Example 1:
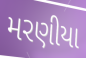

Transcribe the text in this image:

મરણીયા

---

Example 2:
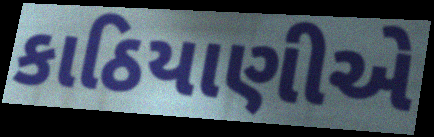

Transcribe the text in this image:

કાઠિયાણીએ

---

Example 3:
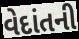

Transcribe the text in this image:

વેદાંતની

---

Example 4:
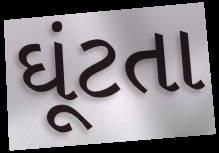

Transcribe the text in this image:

ઘૂંટતા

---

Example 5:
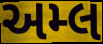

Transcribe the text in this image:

અમ્લ